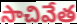
సాచివేత